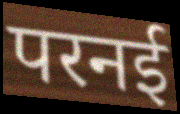
परनई